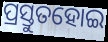
ପ୍ରସ୍ତୁତହୋଇ